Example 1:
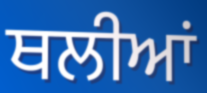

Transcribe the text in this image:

ਥਲੀਆਂ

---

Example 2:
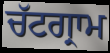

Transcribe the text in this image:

ਚੱਟਗ੍ਰਾਮ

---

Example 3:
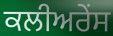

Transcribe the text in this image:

ਕਲੀਅਰੇਂਸ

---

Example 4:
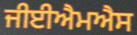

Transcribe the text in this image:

ਜੀਈਐਮਐਸ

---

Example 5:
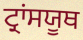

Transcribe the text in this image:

ਟ੍ਰਾਂਸਯੂਥ